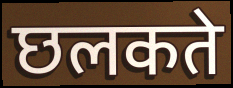
छलकते